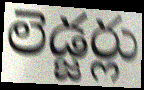
లెడ్జర్లు